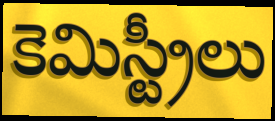
కెమిస్ట్రీలు